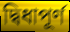
দ্বিধাপূর্ণ